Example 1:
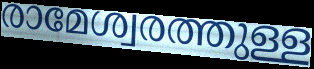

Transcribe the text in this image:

രാമേശ്വരത്തുള്ള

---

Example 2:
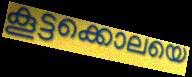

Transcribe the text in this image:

കൂട്ടക്കൊലയെ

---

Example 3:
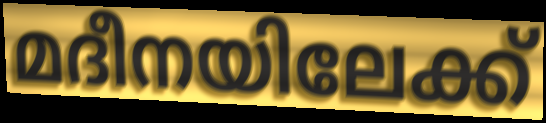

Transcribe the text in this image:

മദീനയിലേക്ക്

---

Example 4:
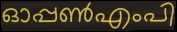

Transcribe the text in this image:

ഓപ്പൺഎംപി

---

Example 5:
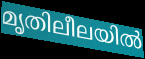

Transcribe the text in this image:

മൃതിലീലയിൽ